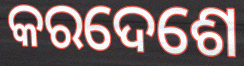
କରଦେଶେ